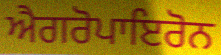
ਐਗਰੋਪਾਇਰੋਨ